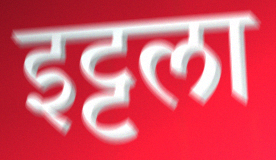
इट्टला